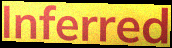
Inferred